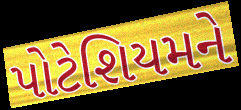
પોટેશિયમને